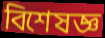
বিশেষজ্ঞ